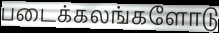
படைக்கலங்களோடு